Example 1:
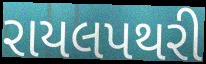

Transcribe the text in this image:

રાયલપથરી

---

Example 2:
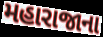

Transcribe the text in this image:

મહારાજાના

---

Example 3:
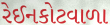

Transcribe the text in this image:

રેઈનકોટવાળા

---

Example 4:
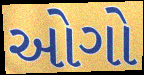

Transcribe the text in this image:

ઓગો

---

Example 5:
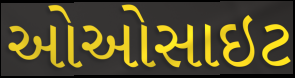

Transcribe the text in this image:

ઓઓસાઇટ